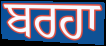
ਬਰਹਾ